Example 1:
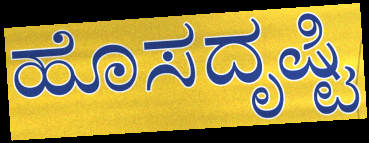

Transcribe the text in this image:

ಹೊಸದೃಷ್ಟಿ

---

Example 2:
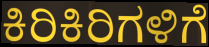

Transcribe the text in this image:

ಕಿರಿಕಿರಿಗಳಿಗೆ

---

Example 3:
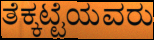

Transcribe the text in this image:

ತೆಕ್ಕಟ್ಟೆಯವರು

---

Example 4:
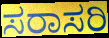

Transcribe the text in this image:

ಸರಾಸರಿ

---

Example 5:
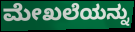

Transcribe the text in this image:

ಮೇಖಲೆಯನ್ನು